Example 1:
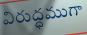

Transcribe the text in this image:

విరుద్ధముగా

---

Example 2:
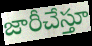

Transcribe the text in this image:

జారీచేస్తూ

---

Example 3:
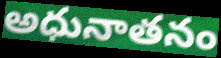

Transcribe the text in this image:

అధునాతనం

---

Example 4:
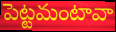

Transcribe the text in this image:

పెట్టమంటావా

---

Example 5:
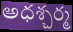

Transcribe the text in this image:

అధశ్చర్మ